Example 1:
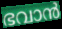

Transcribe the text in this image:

ഭവാൻ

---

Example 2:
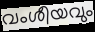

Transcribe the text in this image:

വംശീയവും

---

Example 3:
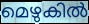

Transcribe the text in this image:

മെഴുകിൽ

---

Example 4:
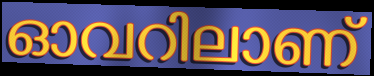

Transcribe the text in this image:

ഓവറിലാണ്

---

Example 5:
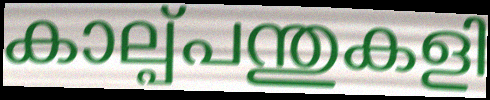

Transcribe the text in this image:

കാല്പ്പന്തുകളി